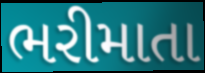
ભરીમાતા